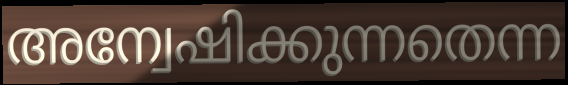
അന്വേഷിക്കുന്നതെന്ന